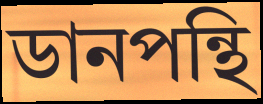
ডানপন্থি